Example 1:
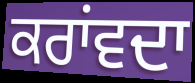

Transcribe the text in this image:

ਕਰਾਂਵਦਾ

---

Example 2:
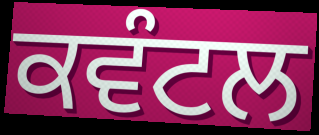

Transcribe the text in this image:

ਕਵੰਟਲ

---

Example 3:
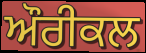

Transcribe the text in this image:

ਔਰੀਕਲ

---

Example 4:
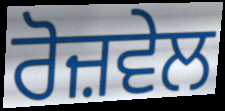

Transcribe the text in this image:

ਰੋਜ਼ਵੇਲ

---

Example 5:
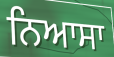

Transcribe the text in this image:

ਨਿਆਸਾ